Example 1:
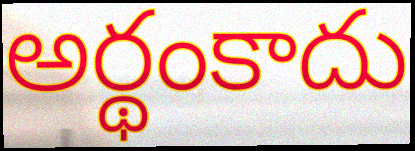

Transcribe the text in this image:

అర్థంకాదు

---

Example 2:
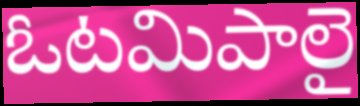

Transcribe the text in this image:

ఓటమిపాలై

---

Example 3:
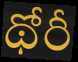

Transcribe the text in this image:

థోరీ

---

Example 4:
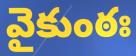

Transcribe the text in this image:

వైకుంఠః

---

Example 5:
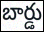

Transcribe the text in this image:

బార్డు